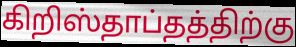
கிறிஸ்தாப்தத்திற்கு